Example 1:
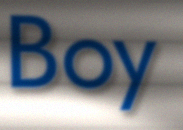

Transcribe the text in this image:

Boy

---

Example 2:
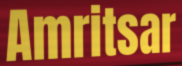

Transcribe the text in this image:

Amritsar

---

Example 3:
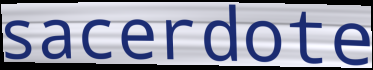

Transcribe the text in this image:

sacerdote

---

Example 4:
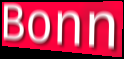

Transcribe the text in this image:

Bonn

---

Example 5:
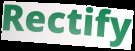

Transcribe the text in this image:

Rectify